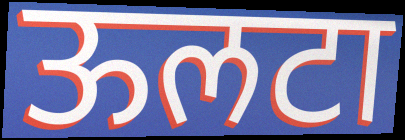
ऊलटा